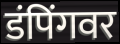
डंपिंगवर